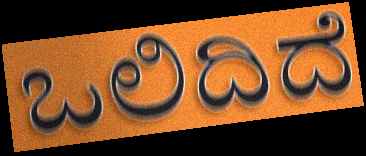
ಒಲಿದಿದೆ